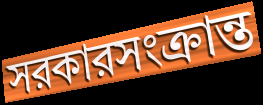
সরকারসংক্রান্ত